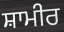
ਸ਼ਾਮੀਰ